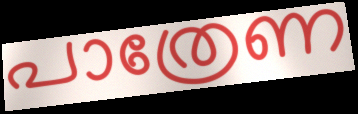
പാത്രേണ